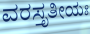
ವರಸ್ತೃತೀಯಃ